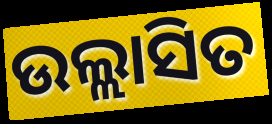
ଉଲ୍ଲାସିତ